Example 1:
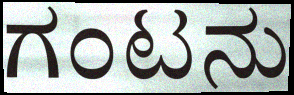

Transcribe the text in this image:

ಗಂಟನು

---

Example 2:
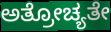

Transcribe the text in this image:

ಅತ್ರೋಚ್ಯತೇ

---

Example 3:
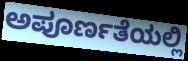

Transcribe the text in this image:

ಅಪೂರ್ಣತೆಯಲ್ಲಿ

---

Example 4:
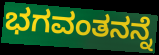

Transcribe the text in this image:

ಭಗವಂತನನ್ನೆ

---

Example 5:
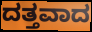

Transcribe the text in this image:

ದತ್ತವಾದ